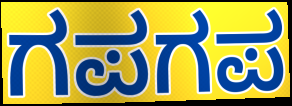
ಗಪಗಪ